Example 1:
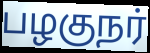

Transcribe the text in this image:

பழகுநர்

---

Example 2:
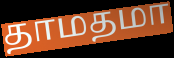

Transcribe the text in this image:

தாமதமா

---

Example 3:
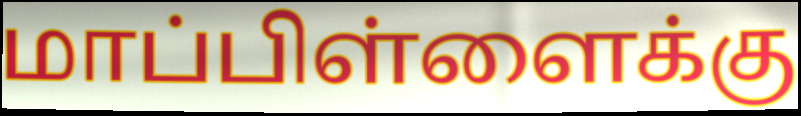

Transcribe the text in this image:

மாப்பிள்ளைக்கு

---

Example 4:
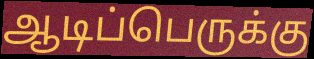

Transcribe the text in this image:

ஆடிப்பெருக்கு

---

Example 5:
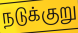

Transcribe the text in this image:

நடுக்குறு